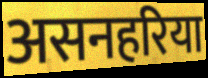
असनहरिया